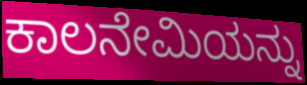
ಕಾಲನೇಮಿಯನ್ನು